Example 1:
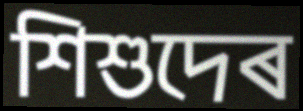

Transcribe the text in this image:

শিশুদেৰ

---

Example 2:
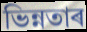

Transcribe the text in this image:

ভিন্নতাৰ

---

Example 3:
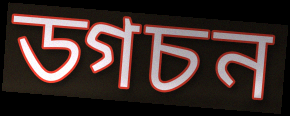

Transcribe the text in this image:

ডগচন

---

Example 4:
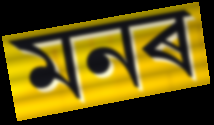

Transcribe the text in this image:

মনৰ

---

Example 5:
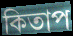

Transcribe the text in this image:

কিতাপ